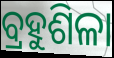
ବ୍ରହୁଶିଳା